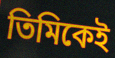
তিমিকেই